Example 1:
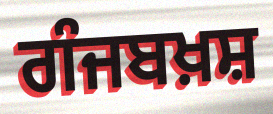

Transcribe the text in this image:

ਗੰਜਬਖ਼ਸ਼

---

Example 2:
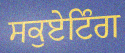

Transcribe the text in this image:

ਸਕੁਏਟਿੰਗ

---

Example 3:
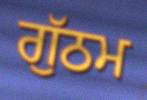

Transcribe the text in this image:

ਗੁੱਠਮ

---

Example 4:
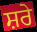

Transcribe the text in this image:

ਸ਼ਰੇ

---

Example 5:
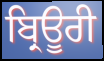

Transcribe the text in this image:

ਬ੍ਰਿਊਰੀ